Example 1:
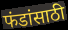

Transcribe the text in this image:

फंडांसाठी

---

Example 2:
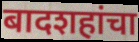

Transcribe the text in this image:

बादशहांचा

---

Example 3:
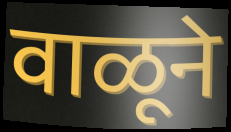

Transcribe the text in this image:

वाळूने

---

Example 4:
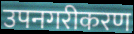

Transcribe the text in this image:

उपनगरीकरण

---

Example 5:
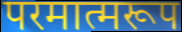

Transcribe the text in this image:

परमात्मरूप